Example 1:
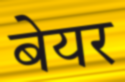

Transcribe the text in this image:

बेयर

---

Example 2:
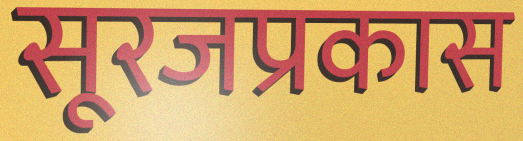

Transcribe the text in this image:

सूरजप्रकास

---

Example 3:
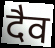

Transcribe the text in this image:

दैव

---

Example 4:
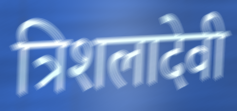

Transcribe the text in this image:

त्रिशलादेवी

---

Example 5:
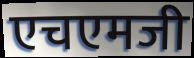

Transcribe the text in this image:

एचएमजी